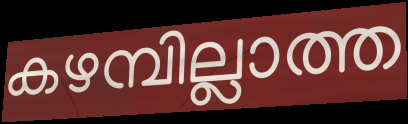
കഴമ്പില്ലാത്ത